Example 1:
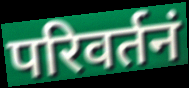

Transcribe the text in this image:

परिवर्तनं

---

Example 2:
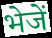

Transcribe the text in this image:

भेजें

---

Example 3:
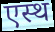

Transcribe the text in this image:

एस्थ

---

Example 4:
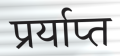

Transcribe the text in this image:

प्रर्याप्त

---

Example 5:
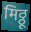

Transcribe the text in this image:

मिठ्ठू